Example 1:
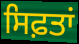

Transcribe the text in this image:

ਸਿਫ਼ਤਾਂ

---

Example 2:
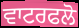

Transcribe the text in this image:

ਵਾਟਰਫਲੋ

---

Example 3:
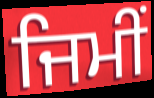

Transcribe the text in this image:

ਜਿਮੀਂ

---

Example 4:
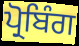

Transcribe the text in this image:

ਪ੍ਰੋਬਿੰਗ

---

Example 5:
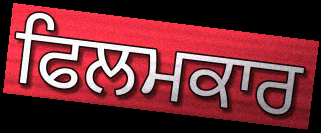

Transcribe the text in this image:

ਫਿਲਮਕਾਰ